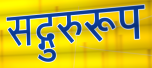
सद्गुरुरूप